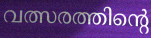
വത്സരത്തിന്റെ